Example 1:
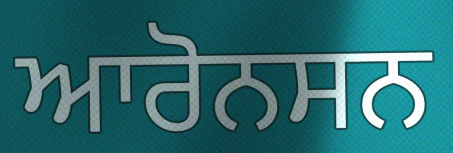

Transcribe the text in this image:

ਆਰੋਨਸਨ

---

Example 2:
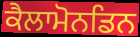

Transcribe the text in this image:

ਕੈਲਾਮੋਨਡਿਨ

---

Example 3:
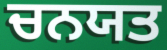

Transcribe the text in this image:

ਚਨਯਤ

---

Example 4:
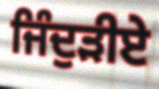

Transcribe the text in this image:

ਜਿੰਦੁੜੀਏ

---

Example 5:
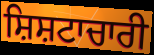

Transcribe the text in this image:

ਸ਼ਿਸ਼ਟਾਚਾਰੀ